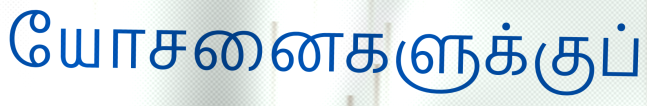
யோசனைகளுக்குப்